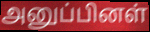
அனுப்பினள்